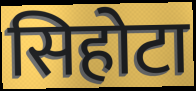
सिहोटा